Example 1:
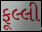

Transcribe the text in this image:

ફૂલ્લી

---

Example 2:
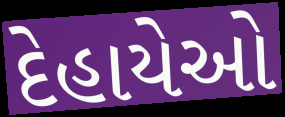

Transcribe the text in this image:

દેહાયેઓ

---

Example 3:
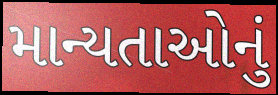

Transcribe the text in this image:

માન્યતાઓનું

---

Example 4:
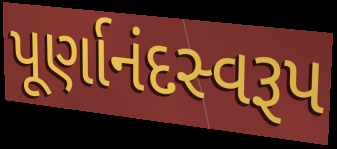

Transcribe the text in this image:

પૂર્ણાનંદસ્વરૂપ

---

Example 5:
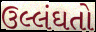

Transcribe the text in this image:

ઉલ્લંઘતો